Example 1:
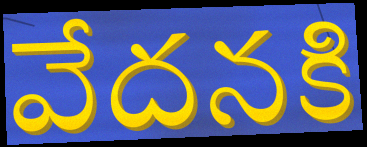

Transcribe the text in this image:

వేదనకి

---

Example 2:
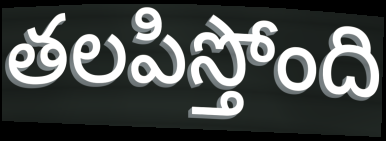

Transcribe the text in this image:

తలపిస్తోంది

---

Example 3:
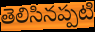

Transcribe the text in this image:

తెలిసినప్పటి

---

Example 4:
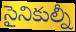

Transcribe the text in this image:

సైనికుల్నీ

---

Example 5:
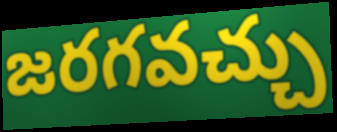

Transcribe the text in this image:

జరగవచ్చు